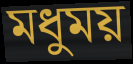
মধুময়